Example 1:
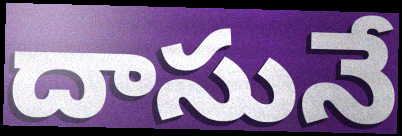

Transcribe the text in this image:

దాసునే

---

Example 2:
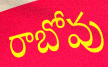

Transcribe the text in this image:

రాబోవు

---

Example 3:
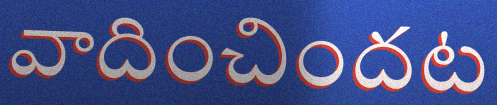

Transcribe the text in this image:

వాదించిందట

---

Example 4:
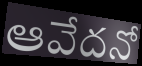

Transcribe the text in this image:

ఆవేదనో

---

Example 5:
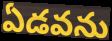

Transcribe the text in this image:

ఏడవను